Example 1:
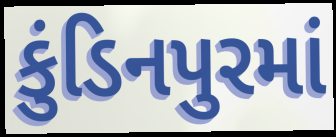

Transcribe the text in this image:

કુંડિનપુરમાં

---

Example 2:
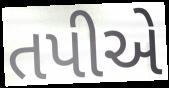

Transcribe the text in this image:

તપીએ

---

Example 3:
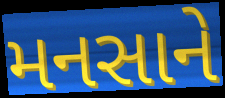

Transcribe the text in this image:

મનસાને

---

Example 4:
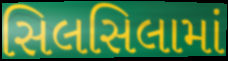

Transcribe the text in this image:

સિલસિલામાં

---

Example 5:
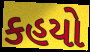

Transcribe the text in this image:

કહયો